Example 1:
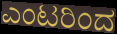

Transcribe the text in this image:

ಎಂಟರಿಂದ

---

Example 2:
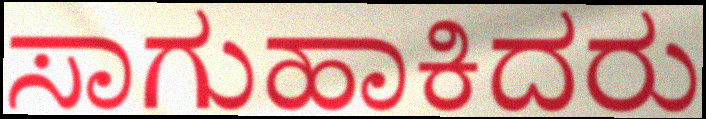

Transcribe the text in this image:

ಸಾಗುಹಾಕಿದರು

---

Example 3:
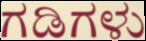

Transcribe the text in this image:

ಗಡಿಗಳು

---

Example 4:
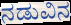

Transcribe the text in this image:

ನಡುವಿನ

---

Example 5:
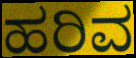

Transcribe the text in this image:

ಹರಿವ